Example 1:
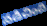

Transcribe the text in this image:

నడిచింది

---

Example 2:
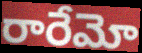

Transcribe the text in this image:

రారేమో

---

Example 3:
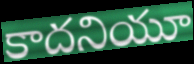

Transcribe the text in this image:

కాదనియూ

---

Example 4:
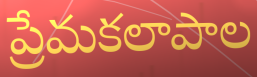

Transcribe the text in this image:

ప్రేమకలాపాల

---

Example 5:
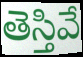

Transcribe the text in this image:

తెస్తివే